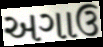
અગાઉ